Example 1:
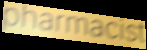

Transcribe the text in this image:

pharmacist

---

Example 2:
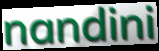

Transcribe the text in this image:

nandini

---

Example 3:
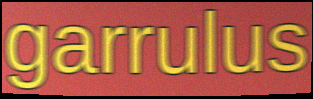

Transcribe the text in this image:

garrulus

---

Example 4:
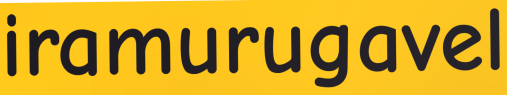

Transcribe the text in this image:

iramurugavel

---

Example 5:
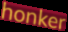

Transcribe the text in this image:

honker